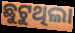
ଛୁଟୁଥିଲା